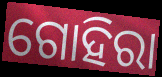
ଗୋହିରା